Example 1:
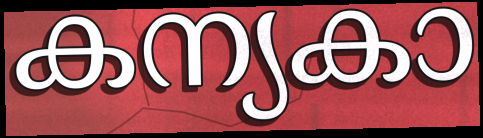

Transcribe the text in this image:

കന്യകാ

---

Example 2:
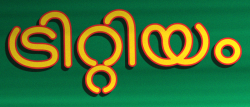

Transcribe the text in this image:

ട്രിറ്റിയം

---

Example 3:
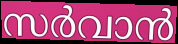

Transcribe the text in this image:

സർവാൻ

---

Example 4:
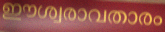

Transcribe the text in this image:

ഈശ്വരാവതാരം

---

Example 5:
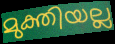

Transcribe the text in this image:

മുക്തിയല്ല